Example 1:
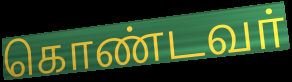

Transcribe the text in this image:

கொண்டவர்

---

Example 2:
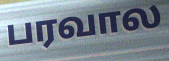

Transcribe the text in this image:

பரவால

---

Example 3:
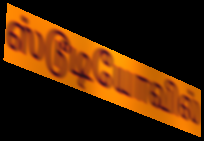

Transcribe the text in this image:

ஸ்டூடியோவில்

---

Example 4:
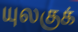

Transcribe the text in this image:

யுலகுக்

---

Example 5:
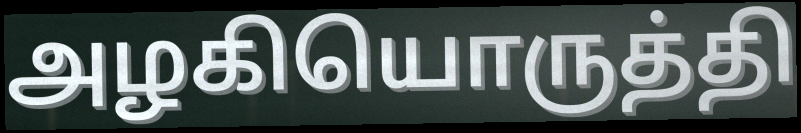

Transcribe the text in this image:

அழகியொருத்தி